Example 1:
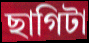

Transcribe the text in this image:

ছাগিটা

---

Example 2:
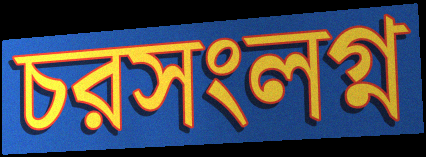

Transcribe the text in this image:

চরসংলগ্ন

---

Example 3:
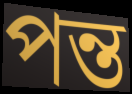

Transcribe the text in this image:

পন্ত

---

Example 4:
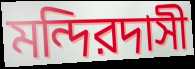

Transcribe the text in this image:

মন্দিরদাসী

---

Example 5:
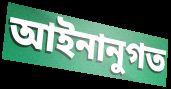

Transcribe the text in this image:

আইনানুগত